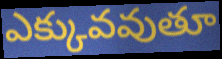
ఎక్కువవుతూ